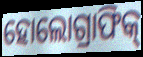
ହୋଲୋଗ୍ରାଫିକ୍